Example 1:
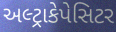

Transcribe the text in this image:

અલ્ટ્રાકેપેસિટર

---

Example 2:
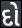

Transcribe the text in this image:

દો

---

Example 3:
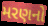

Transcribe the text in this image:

મરણનો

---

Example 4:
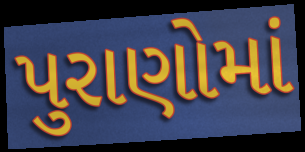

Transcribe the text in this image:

પુરાણોમાં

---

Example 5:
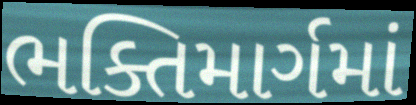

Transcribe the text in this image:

ભક્તિમાર્ગમાં